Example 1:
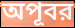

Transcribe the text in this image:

অপূবর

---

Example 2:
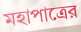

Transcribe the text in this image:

মহাপাত্রের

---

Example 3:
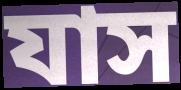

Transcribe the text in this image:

যাস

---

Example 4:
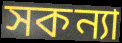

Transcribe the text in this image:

সকন্যা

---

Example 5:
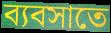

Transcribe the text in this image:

ব্যবসাতে